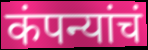
कंपन्यांचं